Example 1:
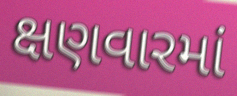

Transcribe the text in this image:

ક્ષણવારમાં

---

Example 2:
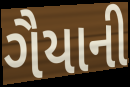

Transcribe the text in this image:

ગૈયાની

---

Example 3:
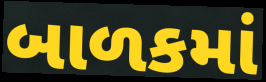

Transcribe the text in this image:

બાળકમાં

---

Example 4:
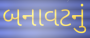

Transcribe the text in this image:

બનાવટનું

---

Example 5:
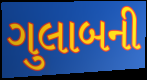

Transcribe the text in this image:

ગુલાબની